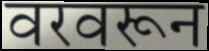
वरवरून